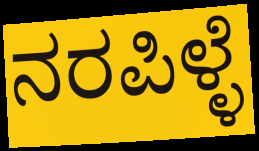
ನರಪಿಳ್ಳೆ